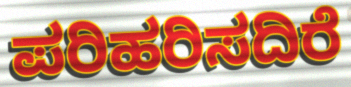
ಪರಿಹರಿಸದಿರೆ